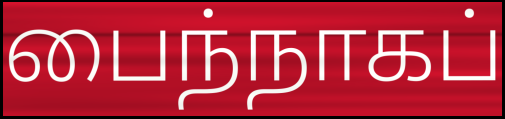
பைந்நாகப்